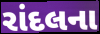
રાંદલના